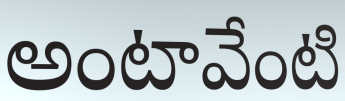
అంటావేంటి